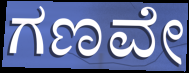
ಗಣವೇ